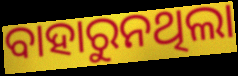
ବାହାରୁନଥିଲା